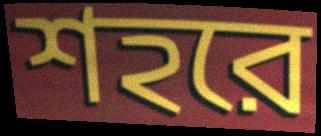
শহরে